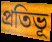
প্রতিভূ